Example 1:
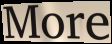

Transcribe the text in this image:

More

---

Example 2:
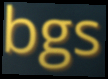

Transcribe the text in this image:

bgs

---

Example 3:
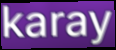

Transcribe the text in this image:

karay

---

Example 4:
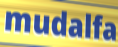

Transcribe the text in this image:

mudalfa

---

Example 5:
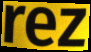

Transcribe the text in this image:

rez